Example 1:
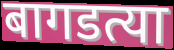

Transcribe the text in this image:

बागडत्या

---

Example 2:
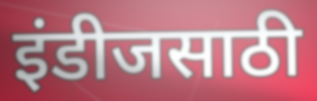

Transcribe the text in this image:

इंडीजसाठी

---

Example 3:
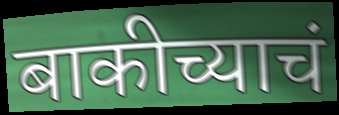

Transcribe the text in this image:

बाकीच्याचं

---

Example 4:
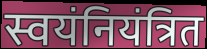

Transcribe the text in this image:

स्वयंनियंत्रित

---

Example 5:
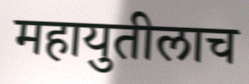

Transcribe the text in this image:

महायुतीलाच